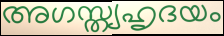
അഗസ്ത്യഹൃദയം